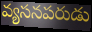
వ్యసనపరుడు